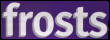
frosts